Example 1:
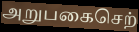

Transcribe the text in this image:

அறுபகைசெற்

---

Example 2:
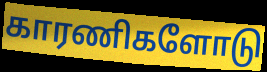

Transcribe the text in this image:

காரணிகளோடு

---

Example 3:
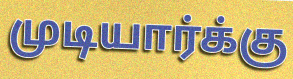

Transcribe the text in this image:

முடியார்க்கு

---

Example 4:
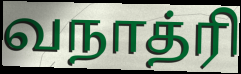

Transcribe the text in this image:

வநாத்ரி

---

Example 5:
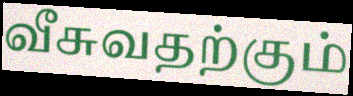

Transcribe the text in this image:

வீசுவதற்கும்